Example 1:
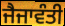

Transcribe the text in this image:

ਜੈਜਾਵੰਤੀ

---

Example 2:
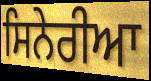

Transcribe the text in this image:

ਸਿਨੇਰੀਆ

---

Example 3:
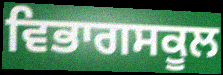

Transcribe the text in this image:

ਵਿਭਾਗਸਕੂਲ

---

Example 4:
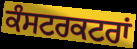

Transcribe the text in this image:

ਕੰਸਟਰਕਟਰਾਂ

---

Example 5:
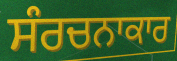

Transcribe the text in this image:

ਸੰਰਚਨਾਕਾਰ